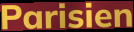
Parisien